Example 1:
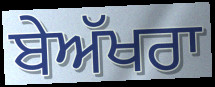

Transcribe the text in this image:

ਬੇਅੱਖਰਾ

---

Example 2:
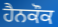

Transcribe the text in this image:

ਹੈਨਕੌਕ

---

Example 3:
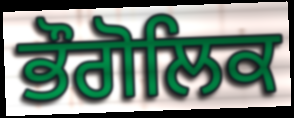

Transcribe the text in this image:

ਭੌਗੋਲਿਕ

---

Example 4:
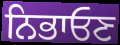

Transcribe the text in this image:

ਨਿਭਾਓਣ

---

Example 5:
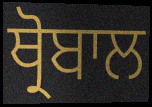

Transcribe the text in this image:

ਥ੍ਰੋਬਾਲ